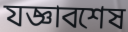
যজ্ঞাবশেষ